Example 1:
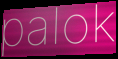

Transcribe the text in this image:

palok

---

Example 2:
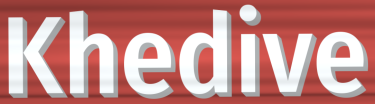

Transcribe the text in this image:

Khedive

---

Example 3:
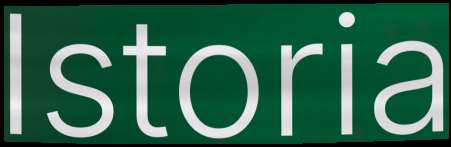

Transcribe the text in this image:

Istoria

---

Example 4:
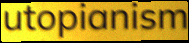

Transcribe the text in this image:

utopianism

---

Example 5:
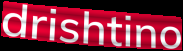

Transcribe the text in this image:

drishtino